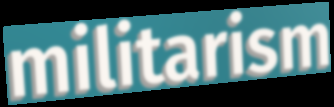
militarism